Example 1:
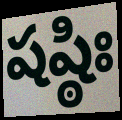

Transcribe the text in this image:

షష్ఠిః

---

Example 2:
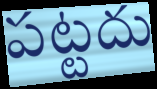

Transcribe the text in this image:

పట్టదు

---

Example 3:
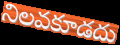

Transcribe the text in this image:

నిలవకూడదు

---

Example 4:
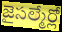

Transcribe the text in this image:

జైసల్మేర్లో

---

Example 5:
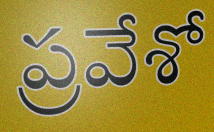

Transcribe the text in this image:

ప్రవేశో